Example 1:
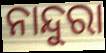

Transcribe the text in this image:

ନାନ୍ଦୁରା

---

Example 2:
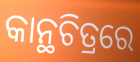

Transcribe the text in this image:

କାନ୍ଥଚିତ୍ରରେ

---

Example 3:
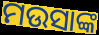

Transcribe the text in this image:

ମଉସାଙ୍କ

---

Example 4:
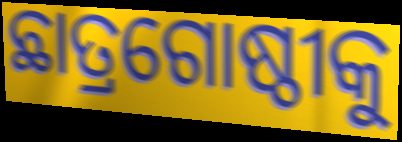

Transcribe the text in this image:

ଛାତ୍ରଗୋଷ୍ଠୀକୁ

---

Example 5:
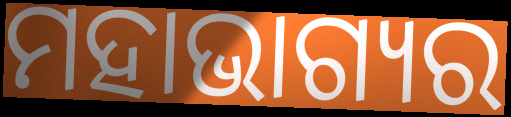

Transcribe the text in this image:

ମହାଭାଗ୍ୟର